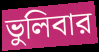
ভুলিবার